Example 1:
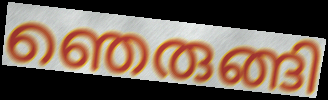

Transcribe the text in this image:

ഞെരുങ്ങി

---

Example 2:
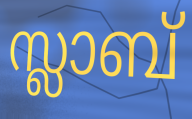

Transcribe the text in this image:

സ്ലാബ്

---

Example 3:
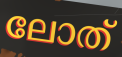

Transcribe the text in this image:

ലോത്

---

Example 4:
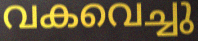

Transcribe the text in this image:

വകവെച്ചു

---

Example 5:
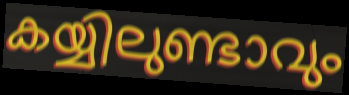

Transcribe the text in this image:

കയ്യിലുണ്ടാവും